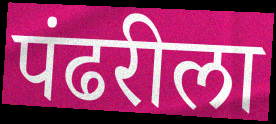
पंढरीला